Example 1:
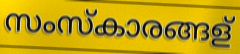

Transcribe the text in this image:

സംസ്കാരങ്ങള്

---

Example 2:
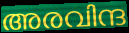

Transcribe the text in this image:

അരവിന്ദ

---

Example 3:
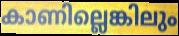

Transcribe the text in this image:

കാണില്ലെങ്കിലും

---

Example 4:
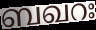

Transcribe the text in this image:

ബഖറഃ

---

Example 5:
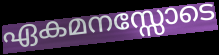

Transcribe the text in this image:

ഏകമനസ്സോടെ